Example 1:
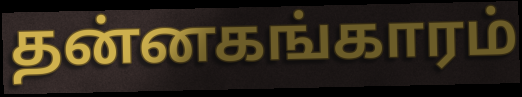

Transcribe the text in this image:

தன்னகங்காரம்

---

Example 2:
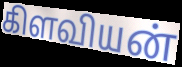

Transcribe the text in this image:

கிளவியன்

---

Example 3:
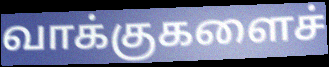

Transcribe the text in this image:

வாக்குகளைச்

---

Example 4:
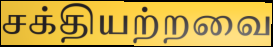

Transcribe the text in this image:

சக்தியற்றவை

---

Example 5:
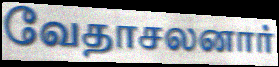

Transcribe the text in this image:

வேதாசலனார்